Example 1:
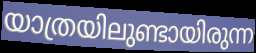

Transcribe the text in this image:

യാത്രയിലുണ്ടായിരുന്ന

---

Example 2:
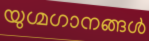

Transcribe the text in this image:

യുഗ്മഗാനങ്ങൾ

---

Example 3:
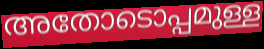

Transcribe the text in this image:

അതോടൊപ്പമുള്ള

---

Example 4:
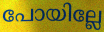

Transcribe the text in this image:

പോയില്ലേ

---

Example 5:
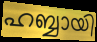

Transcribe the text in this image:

ഹബ്ബായി